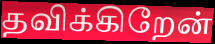
தவிக்கிறேன்